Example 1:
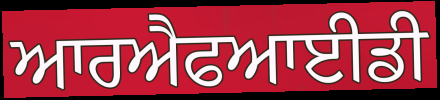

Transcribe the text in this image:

ਆਰਐਫਆਈਡੀ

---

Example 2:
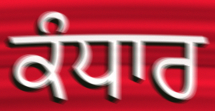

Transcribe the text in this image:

ਕੰਧਾਰ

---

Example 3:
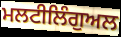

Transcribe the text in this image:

ਮਲਟੀਲਿੰਗੁਅਲ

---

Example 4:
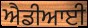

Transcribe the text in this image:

ਐਡੀਆਈ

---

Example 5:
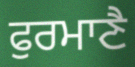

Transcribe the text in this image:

ਫੁਰਮਾਣੈ